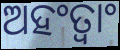
ଅହଂତ୍ୱାଂ